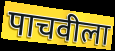
पाचवीला